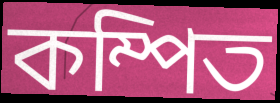
কম্পিত